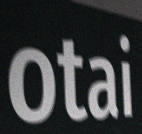
otai